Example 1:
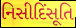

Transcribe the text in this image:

નિસીદિંસૂતિ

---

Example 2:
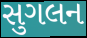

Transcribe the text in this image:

સુગલન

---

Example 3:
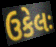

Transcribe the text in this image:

ઉકેલઃ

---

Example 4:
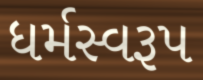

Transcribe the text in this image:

ધર્મસ્વરૂપ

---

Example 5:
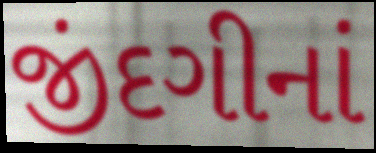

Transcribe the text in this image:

જીંદગીનાં